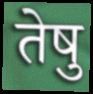
तेषु